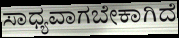
ಸಾಧ್ಯವಾಗಬೇಕಾಗಿದೆ